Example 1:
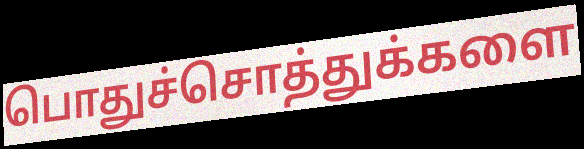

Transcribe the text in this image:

பொதுச்சொத்துக்களை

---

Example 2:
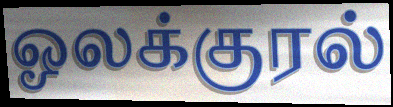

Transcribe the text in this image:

ஓலக்குரல்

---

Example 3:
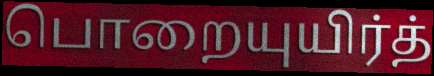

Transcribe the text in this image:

பொறையுயிர்த்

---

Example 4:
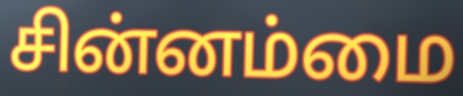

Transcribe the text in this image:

சின்னம்மை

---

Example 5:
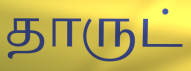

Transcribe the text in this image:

தாருட்